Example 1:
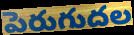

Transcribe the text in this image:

పెరుగుదల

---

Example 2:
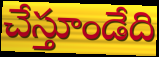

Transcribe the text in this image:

చేస్తూండేది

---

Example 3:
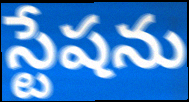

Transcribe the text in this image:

స్టేషను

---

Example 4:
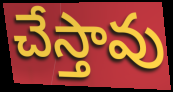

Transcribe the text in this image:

చేస్తావు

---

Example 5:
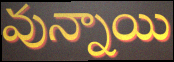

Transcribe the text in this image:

వున్నాయి